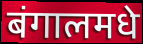
बंगालमधे